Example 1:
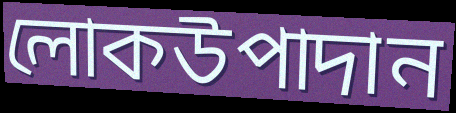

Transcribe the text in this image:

লোকউপাদান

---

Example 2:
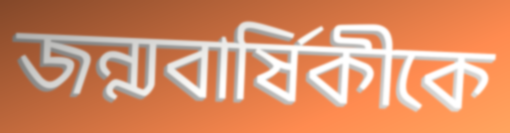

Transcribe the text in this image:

জন্মবার্ষিকীকে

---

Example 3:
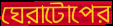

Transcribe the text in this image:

ঘেরাটোপের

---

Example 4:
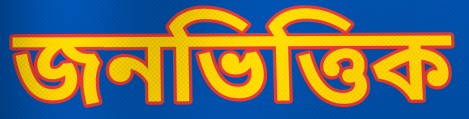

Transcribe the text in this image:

জনভিত্তিক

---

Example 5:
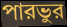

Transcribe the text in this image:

পারভুর